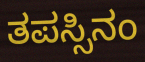
ತಪಸ್ಸಿನಂ